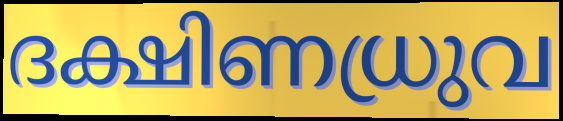
ദക്ഷിണധ്രുവ